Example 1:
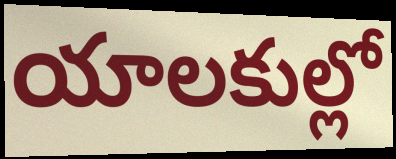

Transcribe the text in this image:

యాలకుల్లో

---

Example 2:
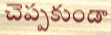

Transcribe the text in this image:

చెప్పకుండా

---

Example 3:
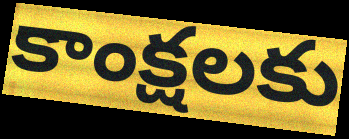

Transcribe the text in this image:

కాంక్షలకు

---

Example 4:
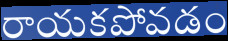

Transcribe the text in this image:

రాయకపోవడం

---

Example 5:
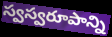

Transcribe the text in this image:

స్వస్వరూపాన్ని